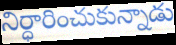
నిర్ధారించుకున్నాడు